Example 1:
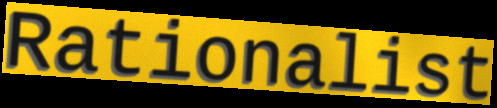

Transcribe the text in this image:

Rationalist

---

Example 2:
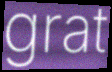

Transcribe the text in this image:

grat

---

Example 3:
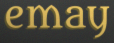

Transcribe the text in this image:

emay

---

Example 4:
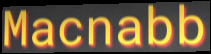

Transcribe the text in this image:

Macnabb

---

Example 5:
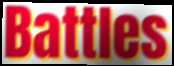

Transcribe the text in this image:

Battles